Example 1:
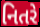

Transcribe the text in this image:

નિતરે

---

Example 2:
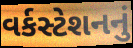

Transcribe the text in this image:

વર્કસ્ટેશનનું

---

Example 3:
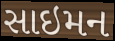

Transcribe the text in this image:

સાઇમન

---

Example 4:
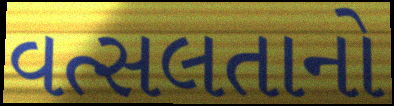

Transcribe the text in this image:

વત્સલતાનો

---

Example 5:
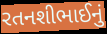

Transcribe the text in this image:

રતનશીભાઈનું